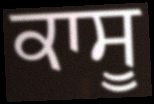
ਕਾਸੂ